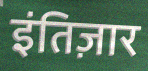
इंतिज़ार